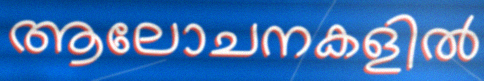
ആലോചനകളിൽ